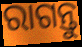
ରାଗନ୍ତୁ